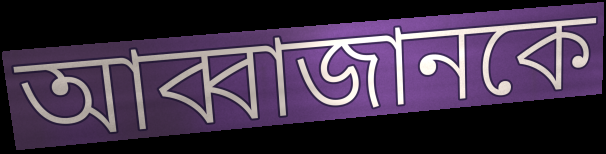
আব্বাজানকে